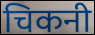
चिकनी